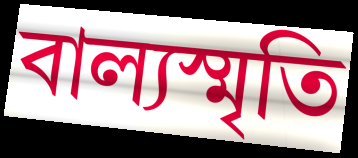
বাল্যস্মৃতি